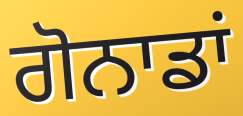
ਗੋਨਾਡਾਂ